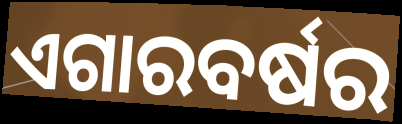
ଏଗାରବର୍ଷର